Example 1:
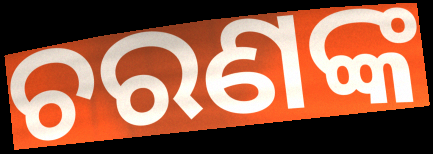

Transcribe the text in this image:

ଚରଣଙ୍କ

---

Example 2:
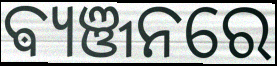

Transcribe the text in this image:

ଵ୍ୟଞ୍ଜନରେ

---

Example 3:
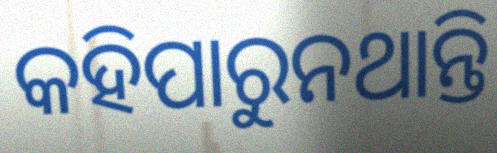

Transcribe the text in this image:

କହିପାରୁନଥାନ୍ତି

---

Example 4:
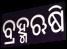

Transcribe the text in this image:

ବ୍ରହ୍ମଋଷି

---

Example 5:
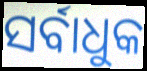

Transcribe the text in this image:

ସର୍ବାଧୁକ